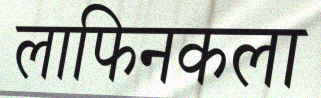
लाफिनकला